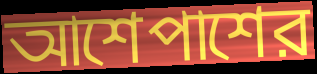
আশেপাশের